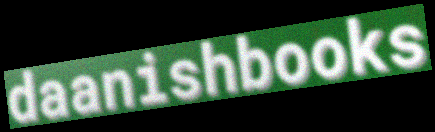
daanishbooks